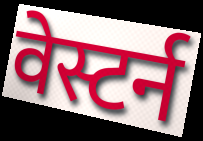
वेस्टर्न